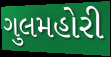
ગુલમહોરી